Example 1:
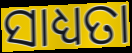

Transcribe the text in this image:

ସାଧ୍ୟତା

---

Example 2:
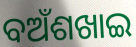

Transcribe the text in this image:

ବଅଁଶଖାଇ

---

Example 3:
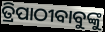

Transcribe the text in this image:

ତ୍ରିପାଠୀବାବୁଙ୍କୁ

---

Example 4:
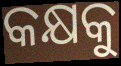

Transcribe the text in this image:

କକ୍ଷକୁ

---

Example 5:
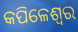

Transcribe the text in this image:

କପିଳେଶ୍ଵର